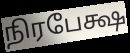
நிரபேக்ஷ